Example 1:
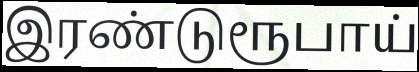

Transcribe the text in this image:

இரண்டுரூபாய்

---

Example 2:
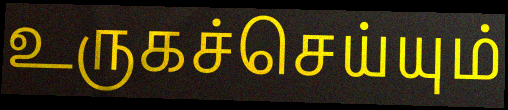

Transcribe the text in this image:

உருகச்செய்யும்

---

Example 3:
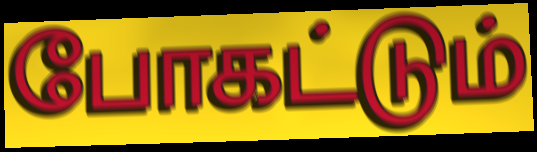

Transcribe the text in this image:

போகட்டும்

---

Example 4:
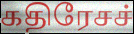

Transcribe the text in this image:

கதிரேசச்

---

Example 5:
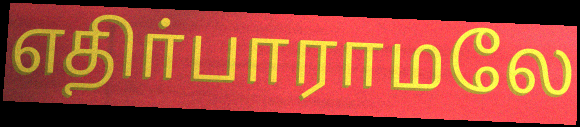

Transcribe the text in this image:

எதிர்பாராமலே